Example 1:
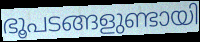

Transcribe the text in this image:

ഭൂപടങ്ങളുണ്ടായി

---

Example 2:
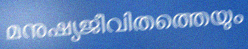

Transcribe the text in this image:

മനുഷ്യജീവിതത്തെയും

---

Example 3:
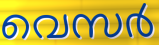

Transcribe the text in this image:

വെസർ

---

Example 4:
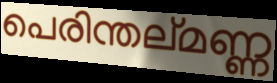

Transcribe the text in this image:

പെരിന്തല്മണ്ണ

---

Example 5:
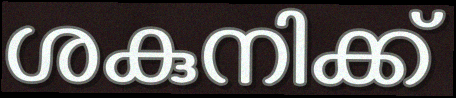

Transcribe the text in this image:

ശകുനിക്ക്